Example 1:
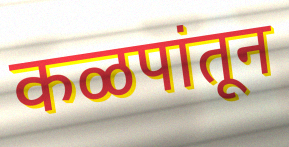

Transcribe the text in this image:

कळपांतून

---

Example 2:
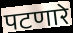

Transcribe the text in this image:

पटणारे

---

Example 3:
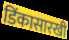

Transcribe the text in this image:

डिंकासारखी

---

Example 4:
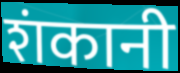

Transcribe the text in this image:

शंकानी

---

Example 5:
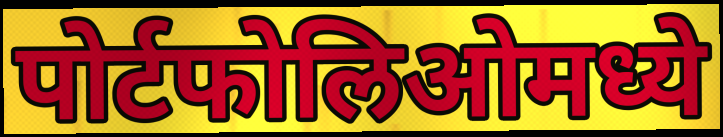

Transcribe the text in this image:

पोर्टफोलिओमध्ये